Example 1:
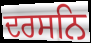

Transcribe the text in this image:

ਦਰਸਨਿ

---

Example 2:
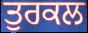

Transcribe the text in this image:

ਤੁਰਕਲ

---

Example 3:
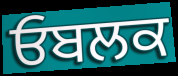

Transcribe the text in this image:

ਓਬਲਕ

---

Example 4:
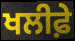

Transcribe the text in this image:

ਖਲੀਫ਼ੇ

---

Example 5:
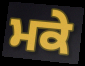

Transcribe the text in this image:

ਮਕੇ